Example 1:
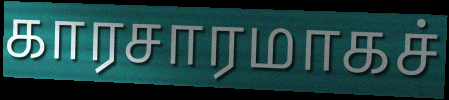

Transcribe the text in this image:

காரசாரமாகச்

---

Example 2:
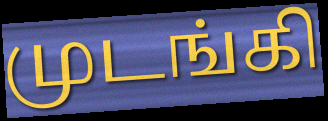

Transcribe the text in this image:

முடங்கி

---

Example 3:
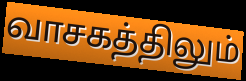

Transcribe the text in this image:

வாசகத்திலும்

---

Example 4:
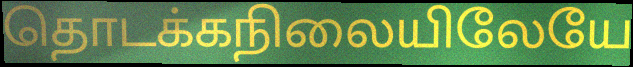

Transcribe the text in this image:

தொடக்கநிலையிலேயே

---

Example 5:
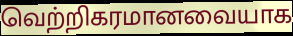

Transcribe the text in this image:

வெற்றிகரமானவையாக